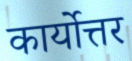
कार्योत्तर